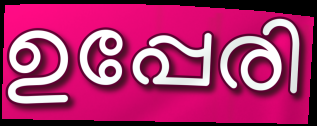
ഉപ്പേരി